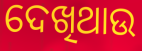
ଦେଖିଥାଉ